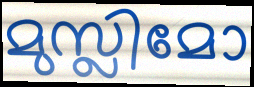
മുസ്ലിമോ